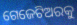
ଗେଜେଟିଅରକୁ